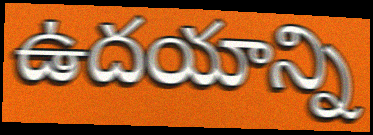
ఉదయాన్ని